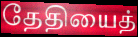
தேதியைத்